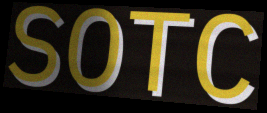
SOTC